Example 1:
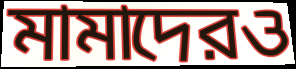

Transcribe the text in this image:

মামাদেরও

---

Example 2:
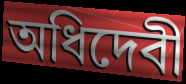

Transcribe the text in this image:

অধিদেবী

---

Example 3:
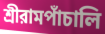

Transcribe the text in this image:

শ্রীরামপাঁচালি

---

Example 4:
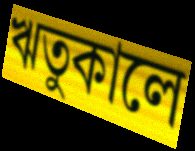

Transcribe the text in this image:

ঋতুকালে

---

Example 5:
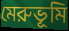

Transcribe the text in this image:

মেরুভূমি